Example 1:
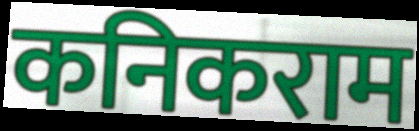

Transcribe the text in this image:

कनिकराम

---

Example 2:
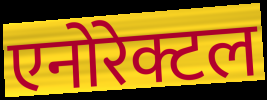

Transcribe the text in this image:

एनोरेक्टल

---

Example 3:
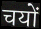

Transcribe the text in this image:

चयों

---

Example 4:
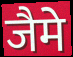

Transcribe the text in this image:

जैमे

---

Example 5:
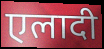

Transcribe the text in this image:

एलादी